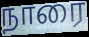
நாரை